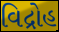
વિદ્રોહ